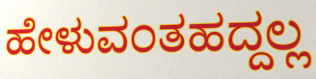
ಹೇಳುವಂತಹದ್ದಲ್ಲ